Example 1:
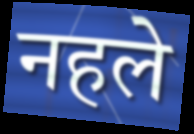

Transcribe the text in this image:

नहले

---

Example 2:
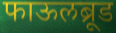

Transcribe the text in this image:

फाऊलब्रूड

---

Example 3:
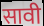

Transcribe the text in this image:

सावी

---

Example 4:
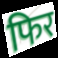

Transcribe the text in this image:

फिर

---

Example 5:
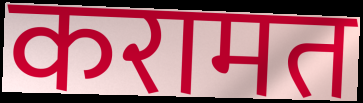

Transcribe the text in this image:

करामत